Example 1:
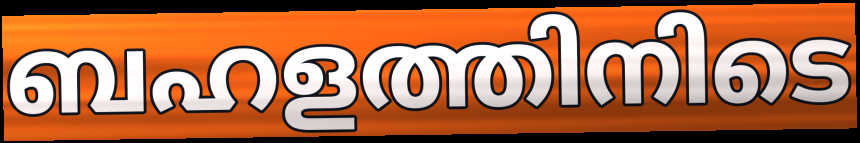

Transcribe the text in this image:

ബഹളത്തിനിടെ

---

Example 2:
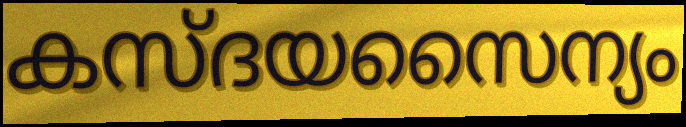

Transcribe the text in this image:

കസ്ദയസൈന്യം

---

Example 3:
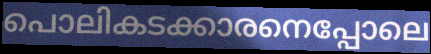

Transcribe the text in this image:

പൊലികടക്കാരനെപ്പോലെ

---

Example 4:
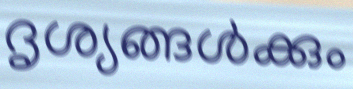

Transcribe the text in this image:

ദൃശ്യങ്ങൾക്കും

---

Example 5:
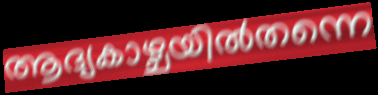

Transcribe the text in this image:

ആദ്യകാഴ്ചയിൽതന്നെ